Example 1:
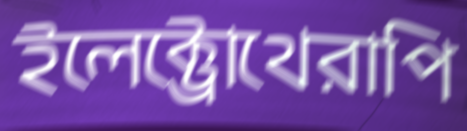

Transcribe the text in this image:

ইলেক্ট্রোথেরাপি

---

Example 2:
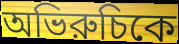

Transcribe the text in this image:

অভিরুচিকে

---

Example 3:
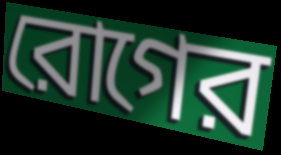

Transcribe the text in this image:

রোগের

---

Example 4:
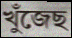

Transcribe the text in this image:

খুঁজেছ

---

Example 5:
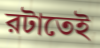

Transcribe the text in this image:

রটাতেই